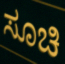
ಸೂಚಿ